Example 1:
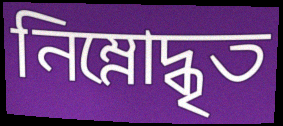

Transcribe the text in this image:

নিম্নোদ্ধৃত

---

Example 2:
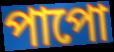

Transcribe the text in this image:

পাপো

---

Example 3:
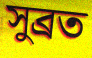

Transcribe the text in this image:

সুব্রত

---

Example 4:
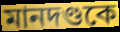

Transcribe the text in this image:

মানদণ্ডকে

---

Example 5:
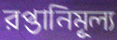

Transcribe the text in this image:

রপ্তানিমূল্য